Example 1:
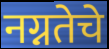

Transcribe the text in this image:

नग्नतेचे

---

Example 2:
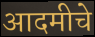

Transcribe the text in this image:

आदमीचे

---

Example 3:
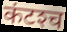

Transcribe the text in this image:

कंटश्च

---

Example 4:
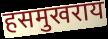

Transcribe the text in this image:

हसमुखराय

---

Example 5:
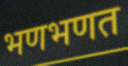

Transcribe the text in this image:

भणभणत